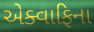
એક્વાફિના